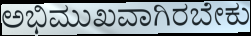
ಅಭಿಮುಖವಾಗಿರಬೇಕು